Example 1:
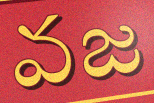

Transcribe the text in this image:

వజ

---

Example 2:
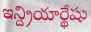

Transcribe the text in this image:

ఇన్ద్రియార్థేషు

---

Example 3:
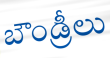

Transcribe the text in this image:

బౌండ్రీలు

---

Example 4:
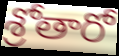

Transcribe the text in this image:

శ్రోతారో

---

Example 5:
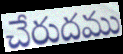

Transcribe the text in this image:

చేరుదము